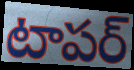
టాపర్